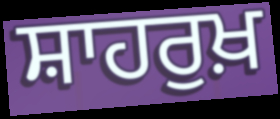
ਸ਼ਾਹਰੁਖ਼